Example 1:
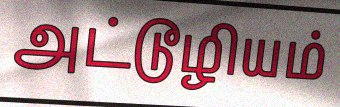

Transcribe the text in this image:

அட்டூழியம்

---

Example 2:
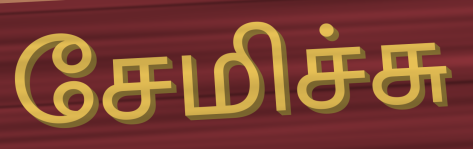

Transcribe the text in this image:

சேமிச்சு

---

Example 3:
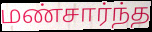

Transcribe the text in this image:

மண்சார்ந்த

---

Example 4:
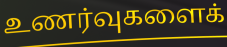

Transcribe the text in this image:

உணர்வுகளைக்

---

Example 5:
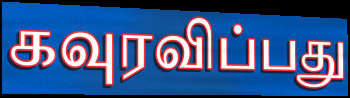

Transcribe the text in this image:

கவுரவிப்பது